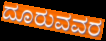
ದೂರುವವರ